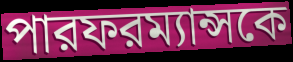
পারফরম্যান্সকে